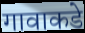
गावाकडे